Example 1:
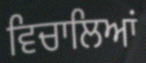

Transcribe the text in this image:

ਵਿਚਾਲਿਆਂ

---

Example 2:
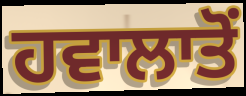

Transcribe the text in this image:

ਹਵਾਲਾਤੋਂ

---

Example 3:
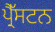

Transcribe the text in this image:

ਪ੍ਰੈੱਸਟਨ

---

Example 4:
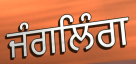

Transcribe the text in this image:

ਜੰਗਲਿੰਗ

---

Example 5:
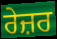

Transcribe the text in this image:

ਰੇਜ਼ਰ